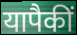
यापैकीं